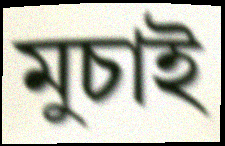
মুচাই